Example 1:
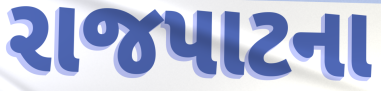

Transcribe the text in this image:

રાજપાટના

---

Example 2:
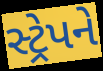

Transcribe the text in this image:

સ્ટ્રેપને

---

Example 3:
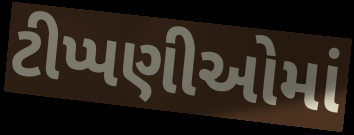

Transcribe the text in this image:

ટીપ્પણીઓમાં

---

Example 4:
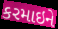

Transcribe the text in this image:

કરમાઇને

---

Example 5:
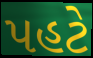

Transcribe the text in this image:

પહટે